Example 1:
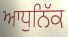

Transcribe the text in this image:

ਆਧੁਨਿੱਕ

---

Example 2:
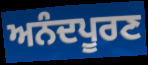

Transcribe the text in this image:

ਅਨੰਦਪੂਰਣ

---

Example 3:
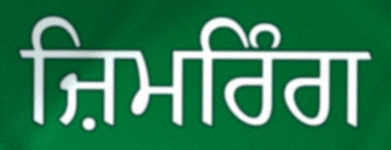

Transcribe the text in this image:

ਜ਼ਿਮਰਿੰਗ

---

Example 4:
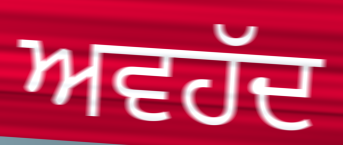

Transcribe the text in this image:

ਅਵਹੱਦ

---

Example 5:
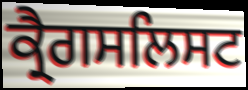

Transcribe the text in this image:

ਕ੍ਰੈਗਸਲਿਸਟ